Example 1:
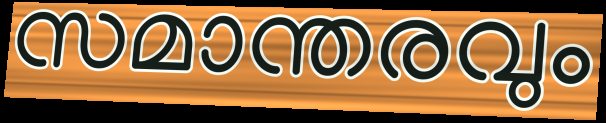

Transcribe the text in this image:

സമാന്തരവും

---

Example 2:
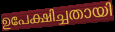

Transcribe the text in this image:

ഉപേക്ഷിച്ചതായി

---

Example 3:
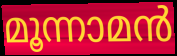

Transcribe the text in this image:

മൂന്നാമൻ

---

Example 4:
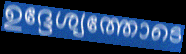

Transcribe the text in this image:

ഉദ്ദേശ്യത്തോടെ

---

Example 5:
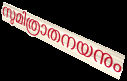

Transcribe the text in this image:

സുമിത്രാതനയനും